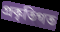
প্ৰকৃতিগত